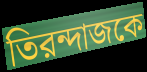
তিরন্দাজকে